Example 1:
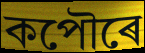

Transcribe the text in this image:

কপৌৰে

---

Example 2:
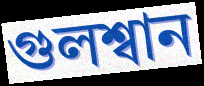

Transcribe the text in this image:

গুলশ্বান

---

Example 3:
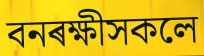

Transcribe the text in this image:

বনৰক্ষীসকলে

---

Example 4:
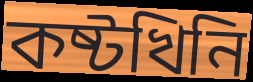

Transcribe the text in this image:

কষ্টখিনি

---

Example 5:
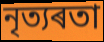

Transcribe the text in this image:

নৃত্যৰতা